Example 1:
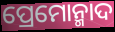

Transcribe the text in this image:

ପ୍ରେମୋନ୍ମାଦ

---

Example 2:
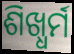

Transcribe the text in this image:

ଶିଖ୍ଧର୍ମ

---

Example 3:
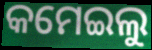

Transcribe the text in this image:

କମେଇଲୁ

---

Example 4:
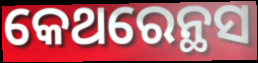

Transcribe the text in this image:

କେଥରେନ୍ଥସ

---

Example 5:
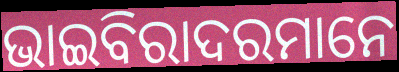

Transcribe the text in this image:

ଭାଇବିରାଦରମାନେ